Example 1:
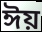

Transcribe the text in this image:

ঈয়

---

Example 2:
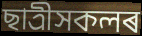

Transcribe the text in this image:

ছাত্ৰীসকলৰ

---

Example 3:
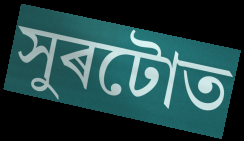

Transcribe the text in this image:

সুৰটোত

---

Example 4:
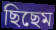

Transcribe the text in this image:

ছিছেম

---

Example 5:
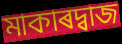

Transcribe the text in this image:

মাকাৰদ্বাজ